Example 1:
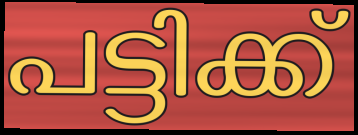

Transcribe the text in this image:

പട്ടിക്ക്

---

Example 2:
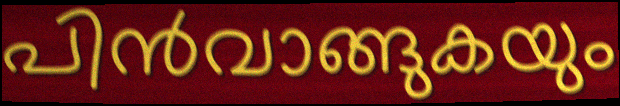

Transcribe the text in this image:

പിൻവാങ്ങുകയും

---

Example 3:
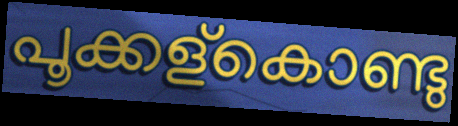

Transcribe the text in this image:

പൂക്കള്കൊണ്ടു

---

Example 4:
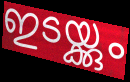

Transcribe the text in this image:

ഇടയ്ക്കും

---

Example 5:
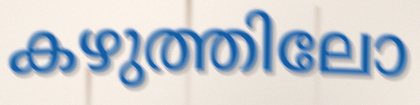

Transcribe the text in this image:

കഴുത്തിലോ